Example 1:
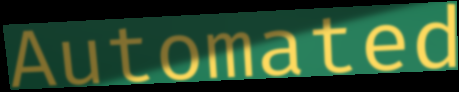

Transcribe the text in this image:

Automated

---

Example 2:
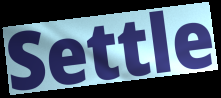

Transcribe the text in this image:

Settle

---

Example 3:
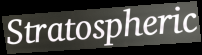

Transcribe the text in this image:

Stratospheric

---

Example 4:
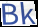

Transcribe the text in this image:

Bk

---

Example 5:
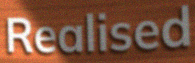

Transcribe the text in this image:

Realised